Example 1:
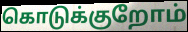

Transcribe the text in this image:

கொடுக்குறோம்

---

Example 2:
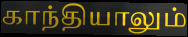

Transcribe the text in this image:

காந்தியாலும்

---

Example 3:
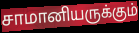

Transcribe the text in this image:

சாமானியருக்கும்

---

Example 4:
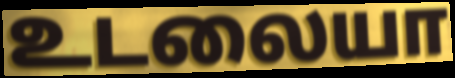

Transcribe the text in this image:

உடலையா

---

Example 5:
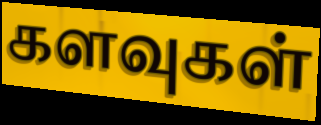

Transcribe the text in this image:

களவுகள்